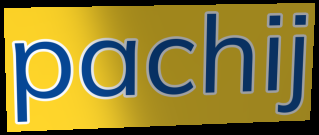
pachij